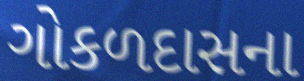
ગોકળદાસના